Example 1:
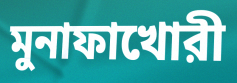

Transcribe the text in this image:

মুনাফাখোরী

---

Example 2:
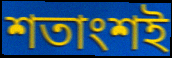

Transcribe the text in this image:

শতাংশই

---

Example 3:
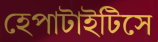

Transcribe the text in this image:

হেপাটাইটিসে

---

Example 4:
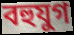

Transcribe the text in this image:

বহুযুগ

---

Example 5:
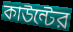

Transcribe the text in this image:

কাউন্টের